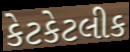
કેટકેટલીક